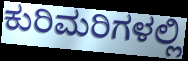
ಕುರಿಮರಿಗಳಲ್ಲಿ